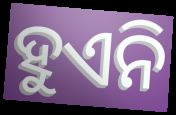
ହୁଏନି